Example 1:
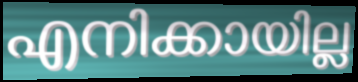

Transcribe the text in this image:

എനിക്കായില്ല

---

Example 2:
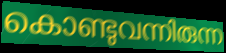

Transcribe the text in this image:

കൊണ്ടുവന്നിരുന്ന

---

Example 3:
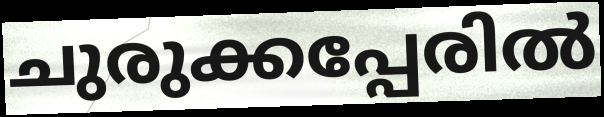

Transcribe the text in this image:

ചുരുക്കപ്പേരിൽ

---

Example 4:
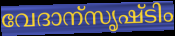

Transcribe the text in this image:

വേദാന്സൃഷ്ടിം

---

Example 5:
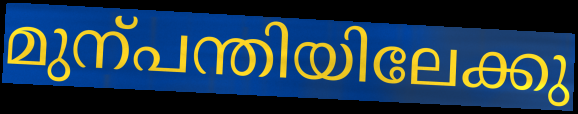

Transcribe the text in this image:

മുന്പന്തിയിലേക്കു